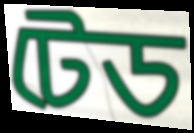
টেড